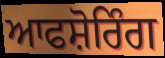
ਆਫਸ਼ੋਰਿੰਗ